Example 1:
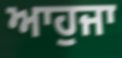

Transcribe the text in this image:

ਆਹੁਜਾ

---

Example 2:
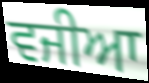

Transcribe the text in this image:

ਵਜੀਆ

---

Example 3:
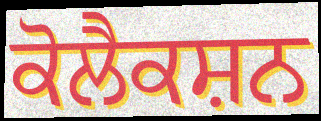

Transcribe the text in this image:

ਕੋਲੈਕਸ਼ਨ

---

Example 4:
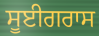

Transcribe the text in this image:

ਸੂਈਗਰਾਸ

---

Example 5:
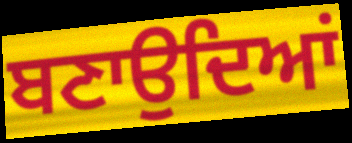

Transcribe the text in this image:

ਬਣਾਉਦਿਆਂ